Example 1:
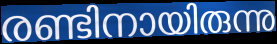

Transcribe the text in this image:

രണ്ടിനായിരുന്നു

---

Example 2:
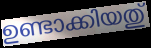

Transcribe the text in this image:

ഉണ്ടാക്കിയതു്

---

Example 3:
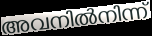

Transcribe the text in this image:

അവനിൽനിന്ന്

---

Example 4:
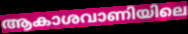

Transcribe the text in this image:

ആകാശവാണിയിലെ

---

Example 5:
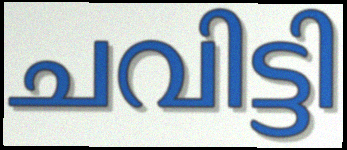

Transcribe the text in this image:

ചവിട്ടി